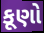
કૂણો